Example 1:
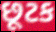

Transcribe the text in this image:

છૂટક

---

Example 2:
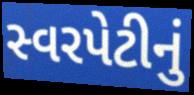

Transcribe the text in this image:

સ્વરપેટીનું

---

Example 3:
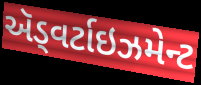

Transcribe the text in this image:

ઍડ્વર્ટાઇઝમેન્ટ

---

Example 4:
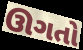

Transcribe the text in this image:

ઊગતો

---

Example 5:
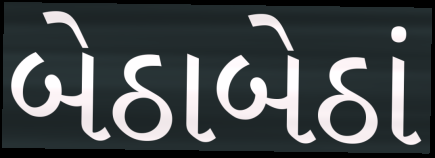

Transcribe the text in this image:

બેઠાબેઠાં